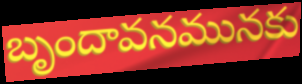
బృందావనమునకు